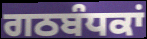
ਗਠਬੰਧਕਾਂ